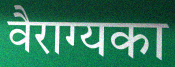
वैराग्यका